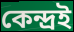
কেন্দ্ৰই